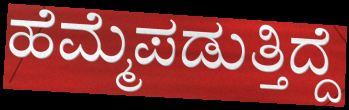
ಹೆಮ್ಮೆಪಡುತ್ತಿದ್ದೆ